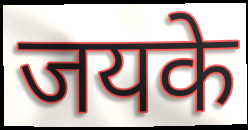
जयके